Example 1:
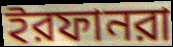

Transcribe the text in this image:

ইরফানরা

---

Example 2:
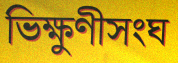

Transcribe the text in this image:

ভিক্ষুণীসংঘ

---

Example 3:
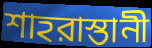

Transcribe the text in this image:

শাহরাস্তানী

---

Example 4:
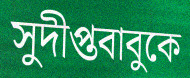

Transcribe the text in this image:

সুদীপ্তবাবুকে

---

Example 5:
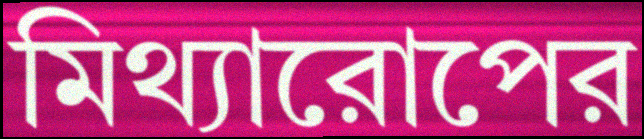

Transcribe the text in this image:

মিথ্যারোপের